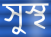
সুস্থ